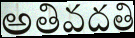
అతివదతి